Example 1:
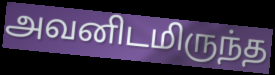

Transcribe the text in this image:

அவனிடமிருந்த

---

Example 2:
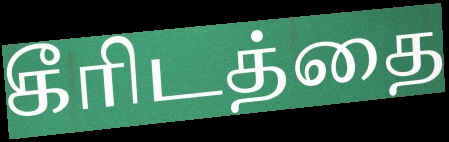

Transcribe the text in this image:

கீரிடத்தை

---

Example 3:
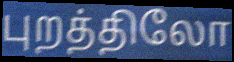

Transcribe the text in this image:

புறத்திலோ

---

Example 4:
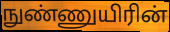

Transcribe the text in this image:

நுண்ணுயிரின்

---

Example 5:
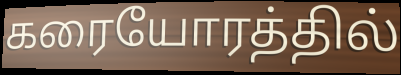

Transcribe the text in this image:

கரையோரத்தில்